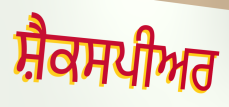
ਸ਼ੈਕਸਪੀਅਰ